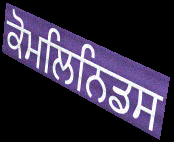
ਕੋਮਲਿਨਿਡਸ